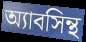
অ্যাবসিন্থ